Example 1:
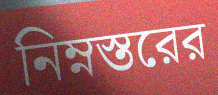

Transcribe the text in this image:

নিম্নস্তরের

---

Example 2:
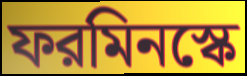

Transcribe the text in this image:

ফরমিনস্কে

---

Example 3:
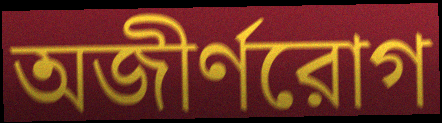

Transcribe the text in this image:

অজীর্ণরোগ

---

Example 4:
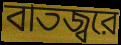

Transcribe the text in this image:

বাতজ্বরে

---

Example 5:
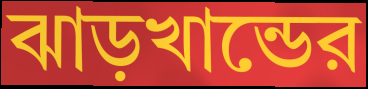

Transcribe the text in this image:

ঝাড়খান্ডের